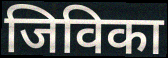
जिविका